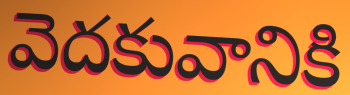
వెదకువానికి